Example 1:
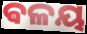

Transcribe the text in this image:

ଵଳୟ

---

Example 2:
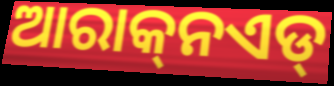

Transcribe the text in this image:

ଆରାକ୍‌ନଏଡ୍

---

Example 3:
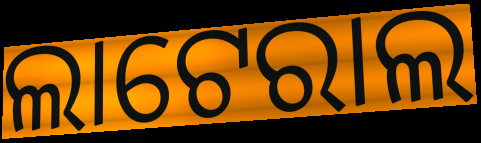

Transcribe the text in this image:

ଲାଟେରାଲ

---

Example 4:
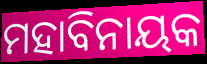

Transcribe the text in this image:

ମହାବିନାୟକ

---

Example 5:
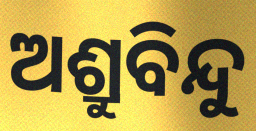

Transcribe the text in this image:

ଅଶ୍ରୁବିନ୍ଦୁ